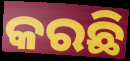
କରଛି